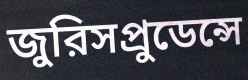
জুরিসপ্রুডেন্সে